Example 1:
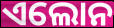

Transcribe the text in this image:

ଏଲୋନ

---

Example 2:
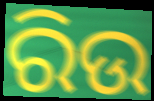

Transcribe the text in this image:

ରିଉ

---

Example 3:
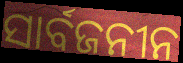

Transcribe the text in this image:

ସାର୍ବଜନୀନ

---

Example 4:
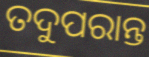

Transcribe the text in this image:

ତଦୁପରାନ୍ତ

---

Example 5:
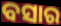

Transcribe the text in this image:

ବସାର